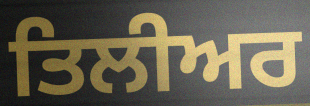
ਤਿਲੀਅਰ